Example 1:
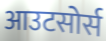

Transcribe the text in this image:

आउटसोर्स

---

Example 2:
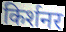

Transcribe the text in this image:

किर्शनर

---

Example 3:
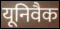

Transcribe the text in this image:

यूनिवैक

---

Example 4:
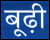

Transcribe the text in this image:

बूढ़ी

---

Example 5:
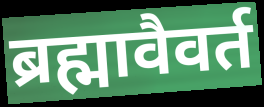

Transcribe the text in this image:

ब्रह्मावैवर्त